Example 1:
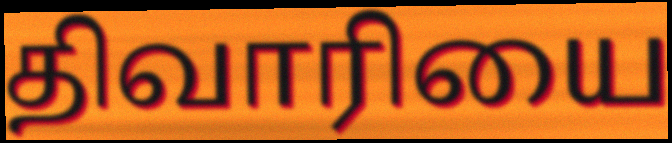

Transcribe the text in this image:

திவாரியை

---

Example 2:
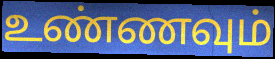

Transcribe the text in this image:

உண்ணவும்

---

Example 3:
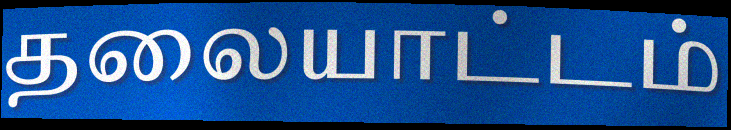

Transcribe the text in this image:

தலையாட்டம்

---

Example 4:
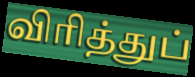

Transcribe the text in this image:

விரித்துப்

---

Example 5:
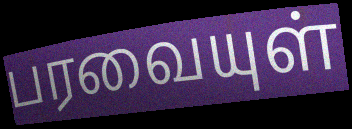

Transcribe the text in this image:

பரவையுள்